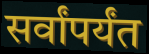
सर्वांपर्यंत